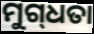
ମୁଗ୍‌ଧତା